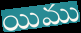
యిము